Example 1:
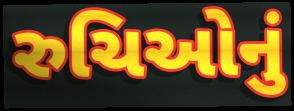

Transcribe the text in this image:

રુચિઓનું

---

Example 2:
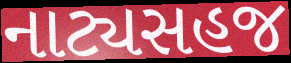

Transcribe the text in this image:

નાટ્યસહજ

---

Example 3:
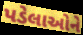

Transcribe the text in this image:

પડેલાઓને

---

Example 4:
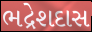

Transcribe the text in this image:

ભદ્રેશદાસ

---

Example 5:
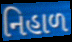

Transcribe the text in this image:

નિહાળ